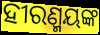
ହୀରଣ୍ମୟଙ୍କ